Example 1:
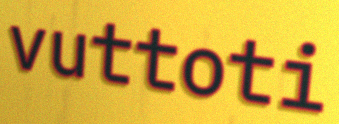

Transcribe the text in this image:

vuttoti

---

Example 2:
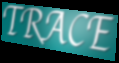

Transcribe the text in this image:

TRACE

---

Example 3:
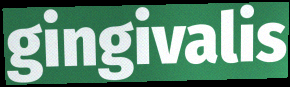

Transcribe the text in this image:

gingivalis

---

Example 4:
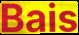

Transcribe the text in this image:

Bais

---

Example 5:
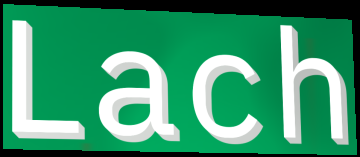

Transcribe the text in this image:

Lach